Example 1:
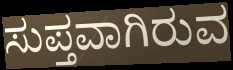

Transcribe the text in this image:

ಸುಪ್ತವಾಗಿರುವ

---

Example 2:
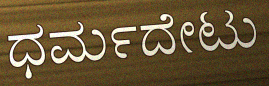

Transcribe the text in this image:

ಧರ್ಮದೇಟು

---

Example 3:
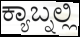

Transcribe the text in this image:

ಕ್ಯಾಬ್ನಲ್ಲಿ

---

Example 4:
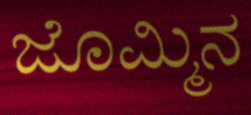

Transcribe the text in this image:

ಜೊಮ್ಮಿನ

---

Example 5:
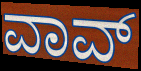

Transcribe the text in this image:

ವಾವ್